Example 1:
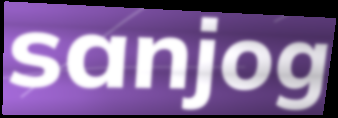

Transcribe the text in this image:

sanjog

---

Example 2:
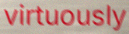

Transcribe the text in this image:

virtuously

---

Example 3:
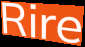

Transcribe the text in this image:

Rire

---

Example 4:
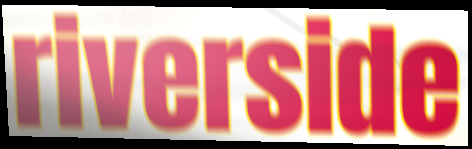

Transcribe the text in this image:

riverside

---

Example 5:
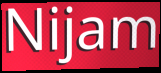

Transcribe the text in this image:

Nijam